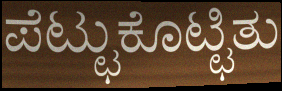
ಪೆಟ್ಟುಕೊಟ್ಟಿತು